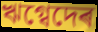
ঋগ্বেদেৰ